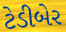
ટેડીબેર